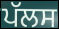
ਪੱਲਸ